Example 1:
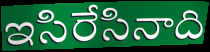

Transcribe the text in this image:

ఇసిరేసినాది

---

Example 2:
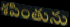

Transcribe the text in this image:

శపింతును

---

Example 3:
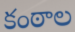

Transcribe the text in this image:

కంఠాల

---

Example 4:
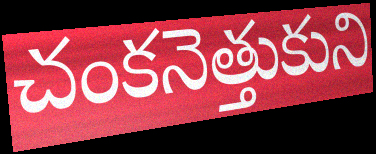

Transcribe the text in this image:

చంకనెత్తుకుని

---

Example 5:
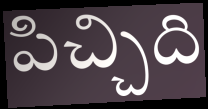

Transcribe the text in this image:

పిచ్చిది